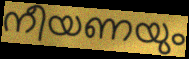
നീയണയും